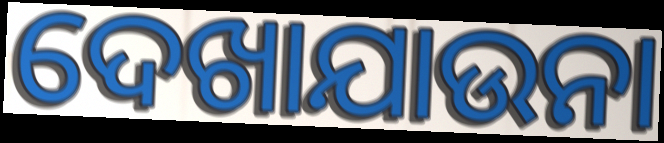
ଦେଖାଯାଉନା